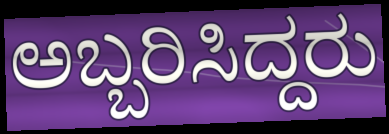
ಅಬ್ಬರಿಸಿದ್ದರು